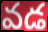
వడ